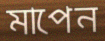
মাপেন